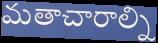
మతాచారాల్ని